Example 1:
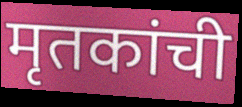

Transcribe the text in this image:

मृतकांची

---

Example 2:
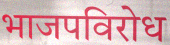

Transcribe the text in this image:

भाजपविरोध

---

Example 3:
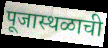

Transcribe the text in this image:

पूजास्थळाची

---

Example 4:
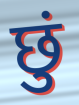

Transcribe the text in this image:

छुं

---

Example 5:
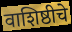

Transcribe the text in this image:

वाशिष्ठीचे